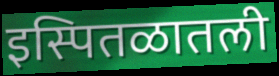
इस्पितळातली